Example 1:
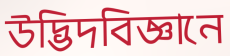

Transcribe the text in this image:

উদ্ভিদবিজ্ঞানে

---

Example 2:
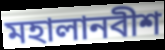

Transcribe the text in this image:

মহালানবীশ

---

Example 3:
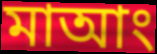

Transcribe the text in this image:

মাআং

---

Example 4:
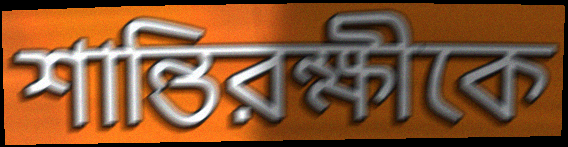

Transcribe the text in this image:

শান্তিরক্ষীকে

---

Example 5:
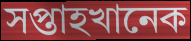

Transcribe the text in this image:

সপ্তাহখানেক